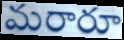
మరారూ